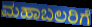
ಮಹಾಬಲರಿಗೆ